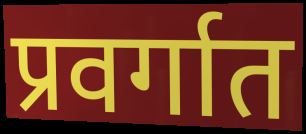
प्रवर्गात